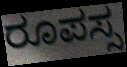
ರೂಪಸ್ಸ